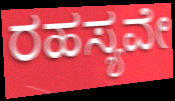
ರಹಸ್ಯವೇ